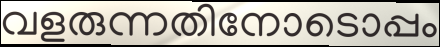
വളരുന്നതിനോടൊപ്പം